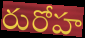
రురోహ